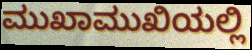
ಮುಖಾಮುಖಿಯಲ್ಲಿ